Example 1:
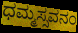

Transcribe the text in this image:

ಧಮ್ಮಸ್ಸವನಂ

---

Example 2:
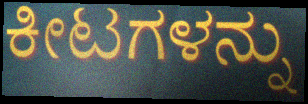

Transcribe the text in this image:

ಕೀಟಗಳನ್ನು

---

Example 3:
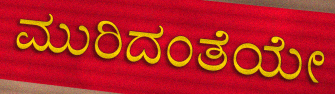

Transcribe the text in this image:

ಮುರಿದಂತೆಯೇ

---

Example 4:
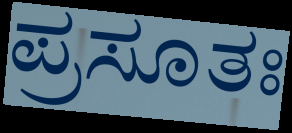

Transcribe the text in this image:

ಪ್ರಸೂತಃ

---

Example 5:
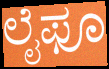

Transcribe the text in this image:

ಲೈಫೂ